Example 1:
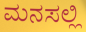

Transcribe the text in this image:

ಮನಸಲ್ಲಿ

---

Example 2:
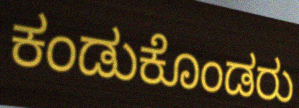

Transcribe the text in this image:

ಕಂಡುಕೊಂಡರು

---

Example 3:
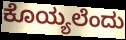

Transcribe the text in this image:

ಕೊಯ್ಯಲೆಂದು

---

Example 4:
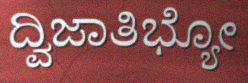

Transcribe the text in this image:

ದ್ವಿಜಾತಿಭ್ಯೋ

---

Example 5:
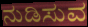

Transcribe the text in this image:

ನುಡಿಸುವ